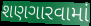
શણગારવામાં